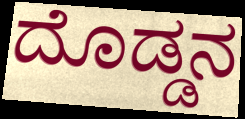
ದೊಡ್ಡನ